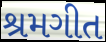
શ્રમગીત